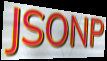
JSONP